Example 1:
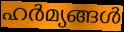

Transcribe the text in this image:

ഹർമ്യങ്ങൾ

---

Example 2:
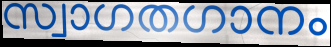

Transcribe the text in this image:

സ്വാഗതഗാനം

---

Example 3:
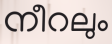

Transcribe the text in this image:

നീറലും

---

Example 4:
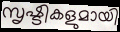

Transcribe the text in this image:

സൃഷ്ടികളുമായി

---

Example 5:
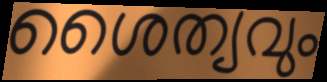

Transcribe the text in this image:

ശൈത്യവും